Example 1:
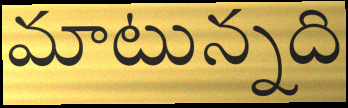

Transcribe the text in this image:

మాటున్నది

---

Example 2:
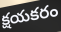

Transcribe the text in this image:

క్షయకరం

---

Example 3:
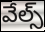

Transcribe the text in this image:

వేల్స్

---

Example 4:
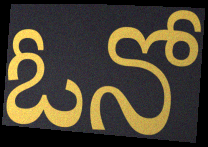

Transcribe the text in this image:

ఓనో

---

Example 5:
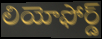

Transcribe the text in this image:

లియోఫోర్డ్